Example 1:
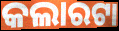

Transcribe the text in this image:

କଲାରଟା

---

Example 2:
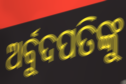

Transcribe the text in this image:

ଅର୍ବୁଦପତିଙ୍କୁ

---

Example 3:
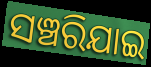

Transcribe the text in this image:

ସଞ୍ଚରିଯାଇ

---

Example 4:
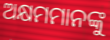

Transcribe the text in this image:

ଅକ୍ଷମମାନଙ୍କୁ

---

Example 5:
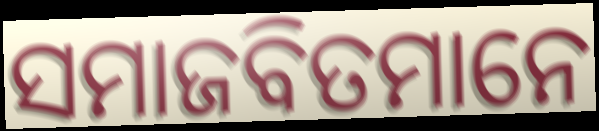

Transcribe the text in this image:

ସମାଜବିତମାନେ